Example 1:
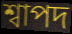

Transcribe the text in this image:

শ্বাপদ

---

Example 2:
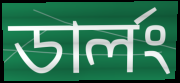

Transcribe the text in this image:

ডার্লং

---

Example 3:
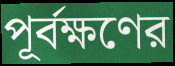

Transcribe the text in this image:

পূর্বক্ষণের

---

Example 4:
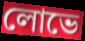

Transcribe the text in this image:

লোভে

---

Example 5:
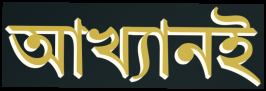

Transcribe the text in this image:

আখ্যানই